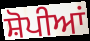
ਸ਼ੋਪੀਆਂ